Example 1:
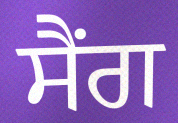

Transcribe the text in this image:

ਸੈਂਗ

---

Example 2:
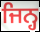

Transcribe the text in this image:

ਜਿਨ੍ਹ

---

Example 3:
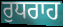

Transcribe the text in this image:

ਰੁਧਰਾਹ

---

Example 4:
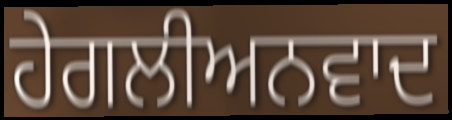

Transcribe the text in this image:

ਹੇਗਲੀਅਨਵਾਦ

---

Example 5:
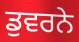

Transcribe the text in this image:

ਡੁਵਰਨੇ